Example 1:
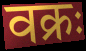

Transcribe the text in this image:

वक्रः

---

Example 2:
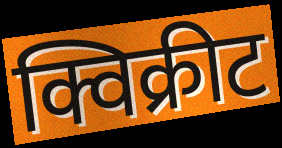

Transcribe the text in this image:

क्विक्रीट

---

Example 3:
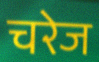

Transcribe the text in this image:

चरेज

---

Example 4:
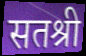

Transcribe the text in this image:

सतश्री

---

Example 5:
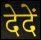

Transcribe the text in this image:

देदें